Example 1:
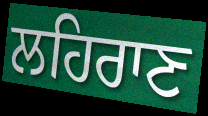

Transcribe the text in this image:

ਲਹਿਰਾਣ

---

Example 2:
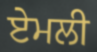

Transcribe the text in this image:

ਏਮਲੀ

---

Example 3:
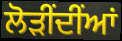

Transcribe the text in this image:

ਲੋੜੀਂਦੀਂਆਂ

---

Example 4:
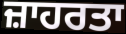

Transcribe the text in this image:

ਜ਼ਾਹਰਤਾ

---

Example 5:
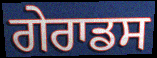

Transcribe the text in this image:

ਗੇਰਾਡਸ